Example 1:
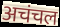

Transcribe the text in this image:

अचंचल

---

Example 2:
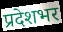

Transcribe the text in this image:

प्रदेशभर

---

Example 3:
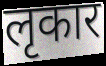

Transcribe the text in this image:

लृकार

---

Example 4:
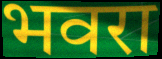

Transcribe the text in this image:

भवरा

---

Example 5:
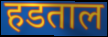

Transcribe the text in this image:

हडताल